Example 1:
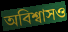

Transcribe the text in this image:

অবিশ্বাসও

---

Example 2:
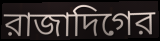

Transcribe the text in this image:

রাজাদিগের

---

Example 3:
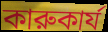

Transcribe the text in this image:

কারুকার্য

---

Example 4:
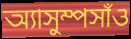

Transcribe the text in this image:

অ্যাসুম্পসাঁও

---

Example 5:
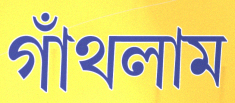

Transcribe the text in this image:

গাঁথলাম